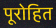
पूरोहित